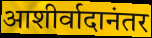
आशीर्वादानंतर